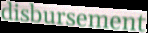
disbursement